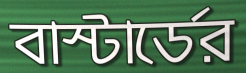
বাস্টার্ডের